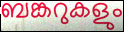
ബങ്കറുകളും